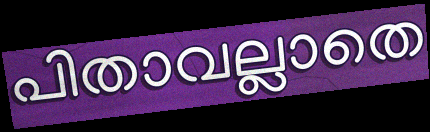
പിതാവല്ലാതെ